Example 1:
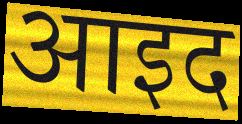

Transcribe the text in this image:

आइद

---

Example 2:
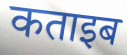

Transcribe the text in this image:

कताइब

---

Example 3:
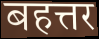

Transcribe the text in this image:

बहत्तर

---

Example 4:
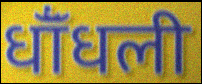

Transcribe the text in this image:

धॉँधली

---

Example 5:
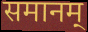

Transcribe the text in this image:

समानम्